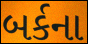
બર્કના